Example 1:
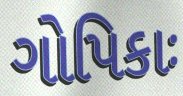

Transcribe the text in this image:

ગોપિકાઃ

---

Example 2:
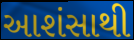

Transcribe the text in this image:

આશંસાથી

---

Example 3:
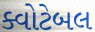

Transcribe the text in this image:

ક્વોટેબલ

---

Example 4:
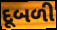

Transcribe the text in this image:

દૂબળી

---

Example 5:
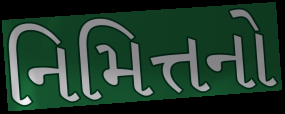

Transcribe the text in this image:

નિમિત્તનો